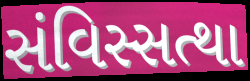
સંવિસ્સત્થા